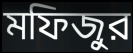
মফিজুর